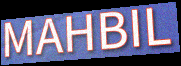
MAHBIL